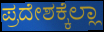
ಪ್ರದೇಶಕ್ಕೆಲ್ಲಾ